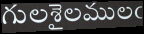
గులశైలములఁ